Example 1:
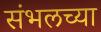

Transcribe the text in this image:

संभलच्या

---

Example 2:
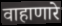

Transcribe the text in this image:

वाहाणारे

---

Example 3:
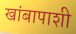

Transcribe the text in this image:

खांबापाशी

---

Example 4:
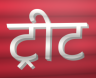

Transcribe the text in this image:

ट्रीट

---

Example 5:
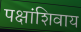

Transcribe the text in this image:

पक्षांशिवाय